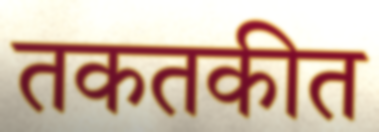
तकतकीत